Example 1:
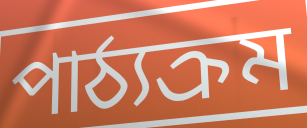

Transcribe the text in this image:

পাঠ্যক্ৰম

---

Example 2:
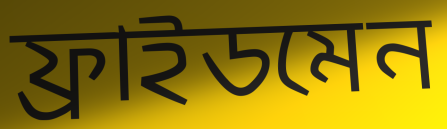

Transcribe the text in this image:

ফ্ৰাইডমেন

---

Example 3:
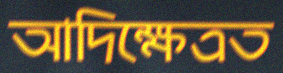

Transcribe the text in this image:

আদিক্ষেত্ৰত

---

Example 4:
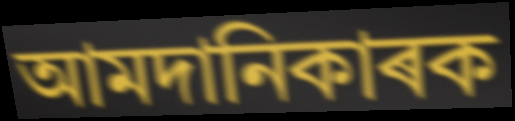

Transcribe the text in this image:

আমদানিকাৰক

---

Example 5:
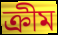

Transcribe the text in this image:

ক্ৰীম